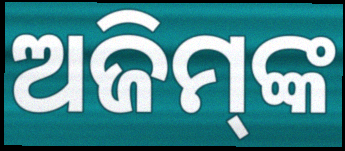
ଅଜିମ୍‌ଙ୍କ